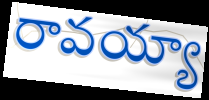
రావయ్యా